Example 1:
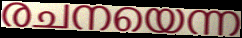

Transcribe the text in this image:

രചനയെന്ന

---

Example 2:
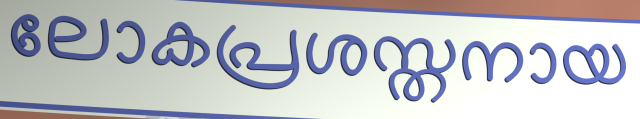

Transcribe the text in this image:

ലോകപ്രശസ്തനായ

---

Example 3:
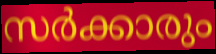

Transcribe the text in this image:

സർക്കാരും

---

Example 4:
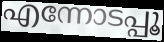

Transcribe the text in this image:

എന്നോടപ്പൂ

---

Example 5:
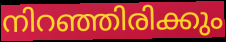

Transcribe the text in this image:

നിറഞ്ഞിരിക്കും